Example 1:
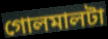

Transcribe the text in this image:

গোলমালটা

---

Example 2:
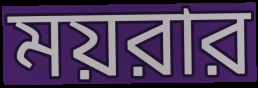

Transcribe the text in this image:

ময়রার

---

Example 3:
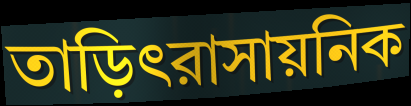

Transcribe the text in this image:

তাড়িৎরাসায়নিক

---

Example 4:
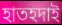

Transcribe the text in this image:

হাতহদাই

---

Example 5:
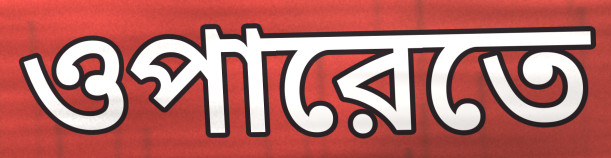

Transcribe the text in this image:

ওপারেতে